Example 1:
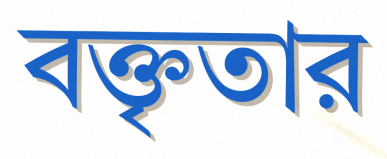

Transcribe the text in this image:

বক্তৃতার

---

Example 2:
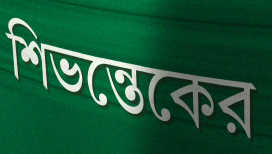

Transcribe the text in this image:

শিভন্তেকের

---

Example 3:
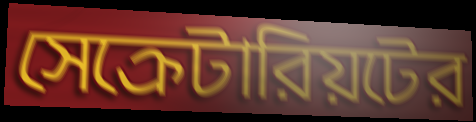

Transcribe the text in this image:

সেক্রেটারিয়টের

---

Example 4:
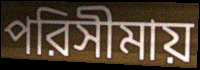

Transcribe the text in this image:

পরিসীমায়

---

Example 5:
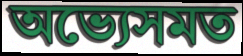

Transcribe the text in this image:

অভ্যেসমত